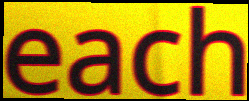
each